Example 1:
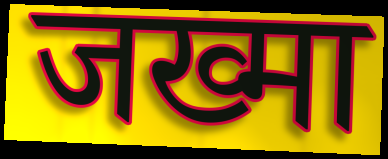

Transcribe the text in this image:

जख्मा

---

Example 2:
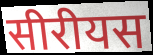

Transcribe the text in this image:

सीरीयस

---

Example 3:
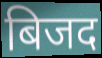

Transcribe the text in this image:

बिजद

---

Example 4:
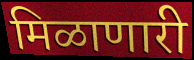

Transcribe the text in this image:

मिळाणारी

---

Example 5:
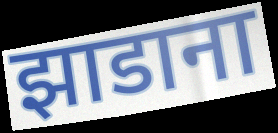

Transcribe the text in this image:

झाडाना